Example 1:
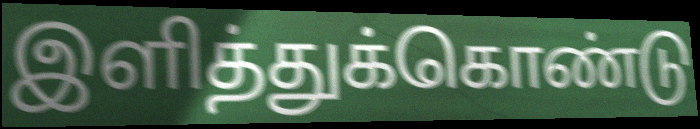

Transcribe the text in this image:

இளித்துக்கொண்டு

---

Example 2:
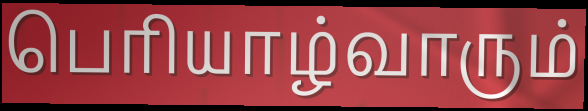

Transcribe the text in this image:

பெரியாழ்வாரும்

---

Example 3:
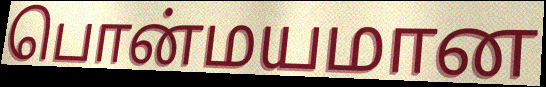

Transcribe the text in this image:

பொன்மயமான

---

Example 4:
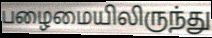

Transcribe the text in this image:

பழைமையிலிருந்து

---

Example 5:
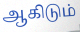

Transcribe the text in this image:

ஆகிடும்